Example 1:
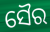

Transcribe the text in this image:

ସୈର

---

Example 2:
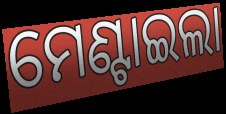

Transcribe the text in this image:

ମେଣ୍ଟାଇଲା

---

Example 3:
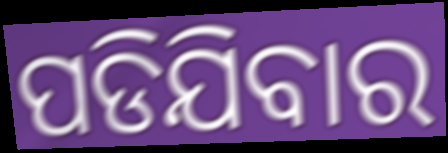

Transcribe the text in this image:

ପଡିଯିବାର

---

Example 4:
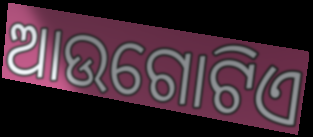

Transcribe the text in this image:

ଆଉଗୋଟିଏ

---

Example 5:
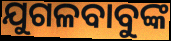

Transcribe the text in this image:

ଯୁଗଳବାବୁଙ୍କ